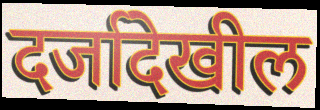
दर्जादेखील